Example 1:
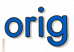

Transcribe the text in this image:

orig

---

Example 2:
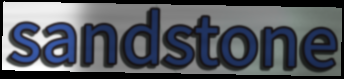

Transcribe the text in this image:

sandstone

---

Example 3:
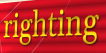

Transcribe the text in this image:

righting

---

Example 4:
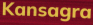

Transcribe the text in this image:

Kansagra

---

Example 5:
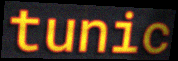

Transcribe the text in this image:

tunic